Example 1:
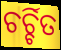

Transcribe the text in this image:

ଚର୍ଚ୍ଚିତ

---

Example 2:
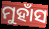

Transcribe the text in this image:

ମୁହାଁସ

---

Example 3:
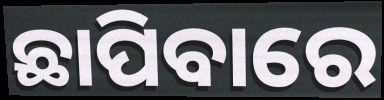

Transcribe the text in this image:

ଛାପିବାରେ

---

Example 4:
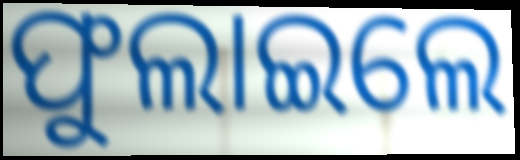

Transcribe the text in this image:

ଫୁଲାଇଲେ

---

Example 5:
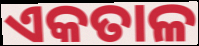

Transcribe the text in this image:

ଏକତାଳ